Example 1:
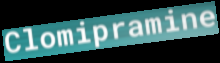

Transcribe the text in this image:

Clomipramine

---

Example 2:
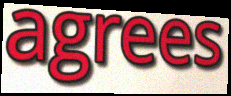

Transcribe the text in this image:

agrees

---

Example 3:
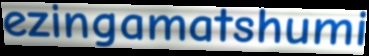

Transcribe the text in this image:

ezingamatshumi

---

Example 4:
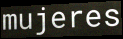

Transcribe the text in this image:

mujeres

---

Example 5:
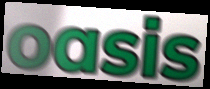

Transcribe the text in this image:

oasis